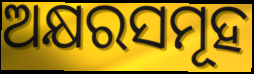
ଅକ୍ଷରସମୂହ